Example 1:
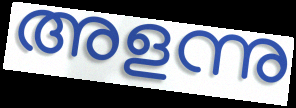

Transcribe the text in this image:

അളന്നു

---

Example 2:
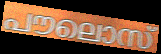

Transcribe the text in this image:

പൗലൊസ്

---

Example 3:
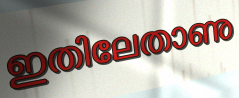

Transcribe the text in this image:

ഇതിലേതാണു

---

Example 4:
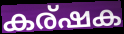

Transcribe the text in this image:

കര്ഷക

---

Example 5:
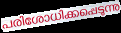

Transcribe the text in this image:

പരിശോധിക്കപ്പെടുന്നു